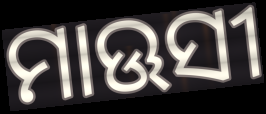
ମାଊସୀ